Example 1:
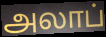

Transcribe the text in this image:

அலாப்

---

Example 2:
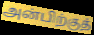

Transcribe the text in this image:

அன்பிற்குத்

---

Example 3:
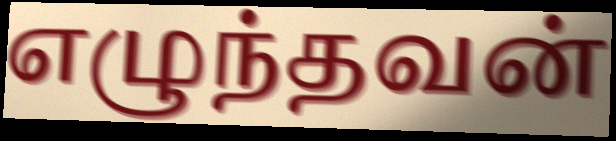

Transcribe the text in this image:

எழுந்தவன்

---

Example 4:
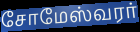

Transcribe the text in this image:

சோமேஸ்வரர்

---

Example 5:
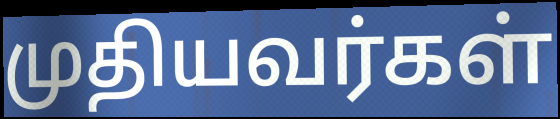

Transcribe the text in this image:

முதியவர்கள்